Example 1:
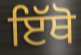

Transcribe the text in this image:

ਇੱਥੋ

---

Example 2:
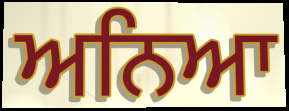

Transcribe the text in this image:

ਅਨਿਆ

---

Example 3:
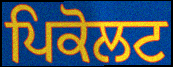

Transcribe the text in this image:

ਪਿਕੋਲਟ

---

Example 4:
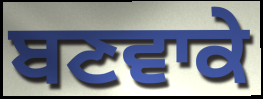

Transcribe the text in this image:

ਬਣਵਾਕੇ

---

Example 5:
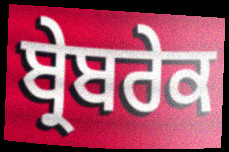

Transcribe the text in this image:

ਬ੍ਰੇਬਰੇਕ